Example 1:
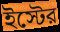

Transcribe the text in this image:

ইস্টের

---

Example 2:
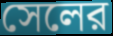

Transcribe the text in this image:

সেলের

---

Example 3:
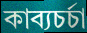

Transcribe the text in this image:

কাব্যচর্চা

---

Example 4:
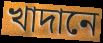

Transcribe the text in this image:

খাদানে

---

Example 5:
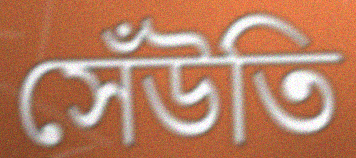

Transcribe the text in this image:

সেঁউতি